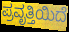
ಪ್ರವೃತ್ತಿಯಿದೆ